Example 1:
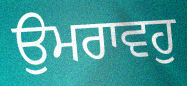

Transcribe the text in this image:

ਉਮਰਾਵਹੁ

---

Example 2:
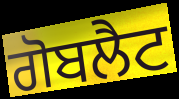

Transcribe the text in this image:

ਗੋਬਲੈਟ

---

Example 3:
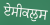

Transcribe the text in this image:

ਏਸੀਕਲੁਸ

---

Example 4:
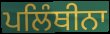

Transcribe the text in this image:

ਪਲਿੰਥੀਨਾ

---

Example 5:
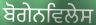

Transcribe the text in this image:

ਬੋਗੇਨਵਿਲੇਸ